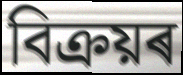
বিক্ৰয়ৰ